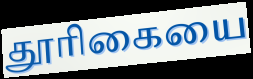
தூரிகையை